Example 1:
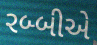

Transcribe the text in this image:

રબ્બીએ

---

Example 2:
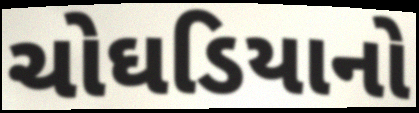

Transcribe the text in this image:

ચોઘડિયાનો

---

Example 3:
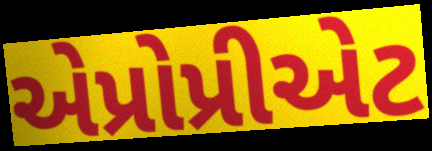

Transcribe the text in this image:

એપ્રોપ્રીએટ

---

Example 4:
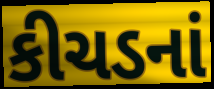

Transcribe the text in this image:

કીચડનાં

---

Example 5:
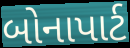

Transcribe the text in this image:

બોનાપાર્ટ